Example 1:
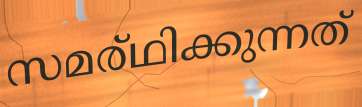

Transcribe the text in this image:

സമര്ഥിക്കുന്നത്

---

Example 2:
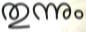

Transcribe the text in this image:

തുന്നും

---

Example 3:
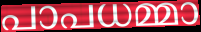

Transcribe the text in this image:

പാപധമ്മാ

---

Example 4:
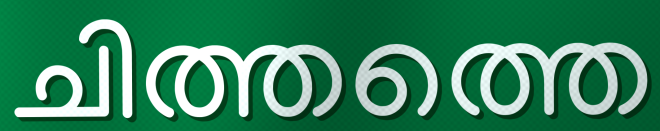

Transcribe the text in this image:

ചിത്തത്തെ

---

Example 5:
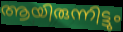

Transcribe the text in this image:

ആയിരുന്നിട്ടും